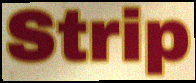
Strip